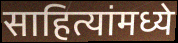
साहित्यांमध्ये